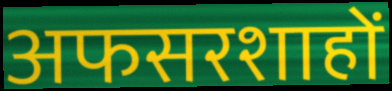
अफसरशाहों